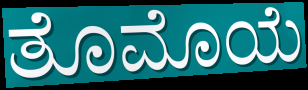
ತೊಮೊಯೆ